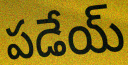
పడేయ్